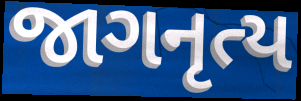
જાગનૃત્ય